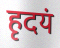
हृदयं